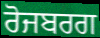
ਰੋਜਬਰਗ